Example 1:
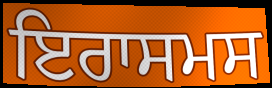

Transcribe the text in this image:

ਇਰਾਸਮਸ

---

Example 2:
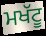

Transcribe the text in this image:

ਮਖੱਟੂ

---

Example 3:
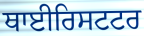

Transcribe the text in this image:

ਥਾਈਰਿਸਟਟਰ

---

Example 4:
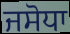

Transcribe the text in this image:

ਜਸੋਧਾ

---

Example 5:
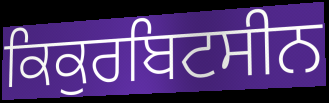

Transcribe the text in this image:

ਕਿਕੁਰਬਿਟਸੀਨ